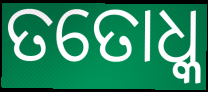
ତତୋଧ୍କ